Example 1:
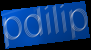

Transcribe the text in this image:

pdilip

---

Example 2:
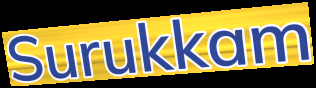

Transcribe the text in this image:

Surukkam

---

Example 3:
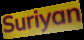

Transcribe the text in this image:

Suriyan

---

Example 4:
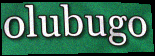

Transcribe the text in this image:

olubugo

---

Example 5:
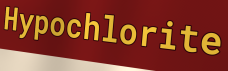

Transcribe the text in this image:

Hypochlorite